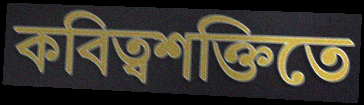
কবিত্বশক্তিতে